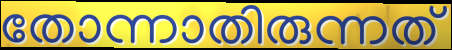
തോന്നാതിരുന്നത്